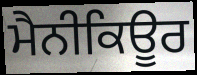
ਮੈਨੀਕਿਊਰ